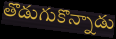
తొడుగుకొన్నాడు